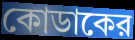
কোডাকের